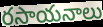
రసాయనాలు